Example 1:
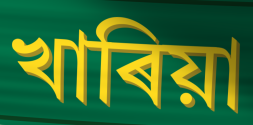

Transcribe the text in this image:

খাৰিয়া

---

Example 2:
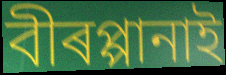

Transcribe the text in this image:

বীৰপ্পানাই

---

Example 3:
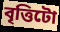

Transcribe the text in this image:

বৃত্তিটো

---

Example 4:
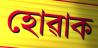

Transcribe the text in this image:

হোৱাক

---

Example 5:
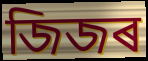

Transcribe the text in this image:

জিজৰ